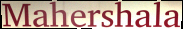
Mahershala